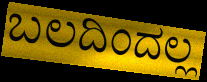
ಬಲದಿಂದಲ್ಲ